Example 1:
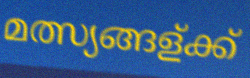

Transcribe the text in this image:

മത്സ്യങ്ങള്ക്ക്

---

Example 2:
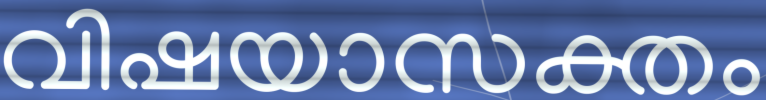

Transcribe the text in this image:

വിഷയാസക്തം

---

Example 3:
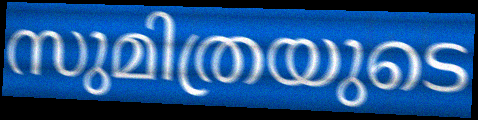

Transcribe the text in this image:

സുമിത്രയുടെ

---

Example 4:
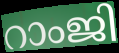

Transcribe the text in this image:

റാംജി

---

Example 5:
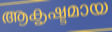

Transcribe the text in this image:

ആകൃഷ്ടമായ